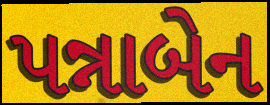
પન્નાબેન